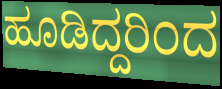
ಹೂಡಿದ್ದರಿಂದ